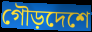
গৌড়দেশে